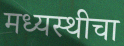
मध्यस्थीचा